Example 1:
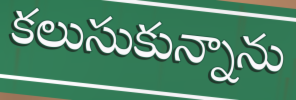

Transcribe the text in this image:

కలుసుకున్నాను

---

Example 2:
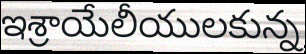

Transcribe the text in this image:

ఇశ్రాయేలీయులకున్న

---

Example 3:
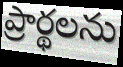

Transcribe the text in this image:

ప్రార్థలను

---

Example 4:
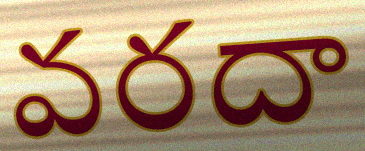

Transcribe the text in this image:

వరదా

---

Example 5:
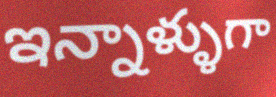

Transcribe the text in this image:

ఇన్నాళ్ళుగా